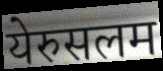
येरुसलम